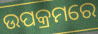
ଉପକ୍ରମରେ